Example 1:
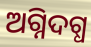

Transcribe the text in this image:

ଅଗ୍ନିଦଗ୍ଧ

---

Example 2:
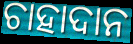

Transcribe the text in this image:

ଚାହାଦାନ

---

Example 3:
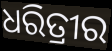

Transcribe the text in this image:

ଧରିତ୍ରୀର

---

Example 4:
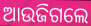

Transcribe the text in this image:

ଆଉଜିଗଲେ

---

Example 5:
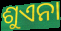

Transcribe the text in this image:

ଶୁଏନା